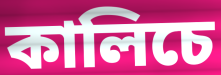
কালিচে